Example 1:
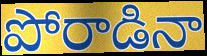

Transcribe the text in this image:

పోరాడినా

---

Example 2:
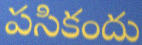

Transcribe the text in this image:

పసికందు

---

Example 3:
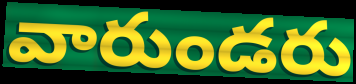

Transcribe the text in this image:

వారుండరు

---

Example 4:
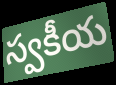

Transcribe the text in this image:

స్వకీయ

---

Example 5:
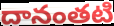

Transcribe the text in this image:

దానంతటి